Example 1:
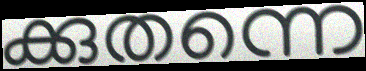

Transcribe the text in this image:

ക്കുതന്നെ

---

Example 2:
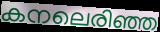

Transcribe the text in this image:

കനലെരിഞ്ഞ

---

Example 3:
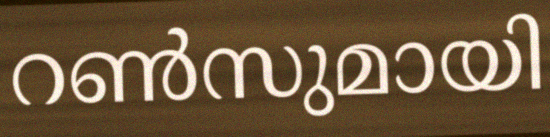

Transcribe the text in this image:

റൺസുമായി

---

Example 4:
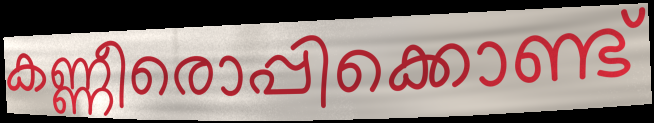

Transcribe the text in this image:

കണ്ണീരൊപ്പിക്കൊണ്ട്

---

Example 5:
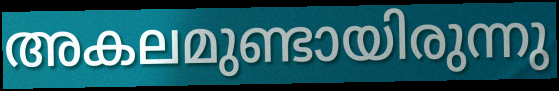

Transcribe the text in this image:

അകലമുണ്ടായിരുന്നു